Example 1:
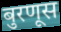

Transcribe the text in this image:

बुरणूस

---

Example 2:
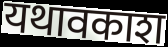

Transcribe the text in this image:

यथावकाश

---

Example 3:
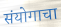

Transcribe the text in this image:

संयोगाचा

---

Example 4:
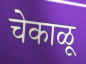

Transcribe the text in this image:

चेकाळू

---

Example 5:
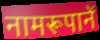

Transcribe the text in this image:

नामरूपानें